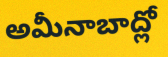
అమీనాబాద్లో